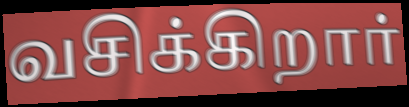
வசிக்கிறார்